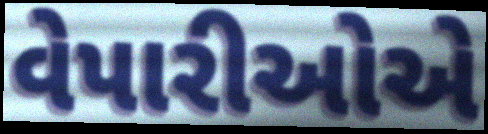
વેપારીઓએ